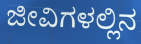
ಜೀವಿಗಳಲ್ಲಿನ